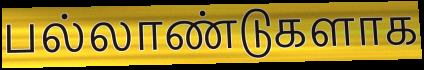
பல்லாண்டுகளாக